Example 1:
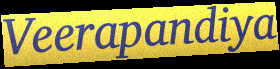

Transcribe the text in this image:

Veerapandiya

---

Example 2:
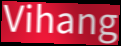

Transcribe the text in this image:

Vihang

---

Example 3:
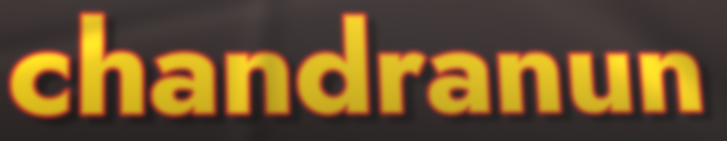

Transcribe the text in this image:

chandranun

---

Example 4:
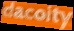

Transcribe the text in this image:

dacoity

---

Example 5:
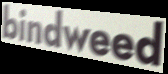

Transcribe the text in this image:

bindweed